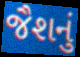
જૈશનું